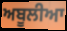
ਅਬੂਲੀਆ